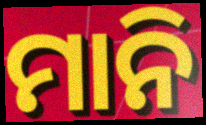
ମାନି